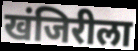
खंजिरीला